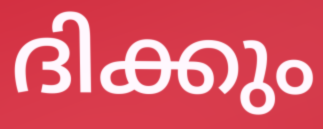
ദിക്കും